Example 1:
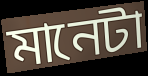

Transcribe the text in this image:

মানেটা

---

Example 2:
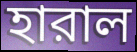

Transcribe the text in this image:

হারাল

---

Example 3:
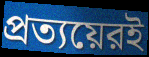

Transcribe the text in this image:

প্রত্যয়েরই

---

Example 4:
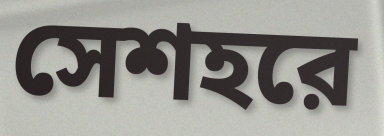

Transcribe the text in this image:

সেশহরে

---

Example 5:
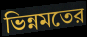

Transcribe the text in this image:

ভিন্নমতের